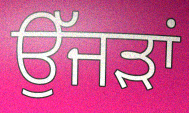
ਉੱਜੜਾਂ